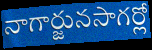
నాగార్జునసాగర్లో